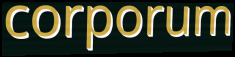
corporum